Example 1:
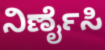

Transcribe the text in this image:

ನಿರ್ಣೈಸಿ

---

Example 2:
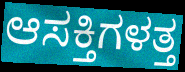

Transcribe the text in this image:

ಆಸಕ್ತಿಗಳತ್ತ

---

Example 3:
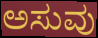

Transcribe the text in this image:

ಅಸುವು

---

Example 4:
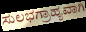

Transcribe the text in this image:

ಸುಲಭಗ್ರಾಹ್ಯವಾಗಿ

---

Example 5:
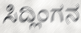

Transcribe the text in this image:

ಸಿದ್ಲಿಂಗನ